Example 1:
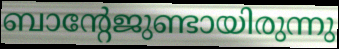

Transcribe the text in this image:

ബാന്റേജുണ്ടായിരുന്നു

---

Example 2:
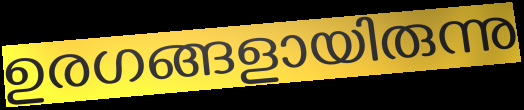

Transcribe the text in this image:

ഉരഗങ്ങളായിരുന്നു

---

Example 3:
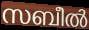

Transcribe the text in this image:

സബീൽ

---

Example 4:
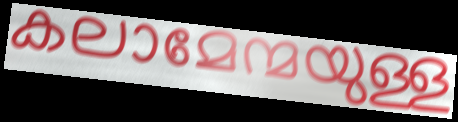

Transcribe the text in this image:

കലാമേന്മയുള്ള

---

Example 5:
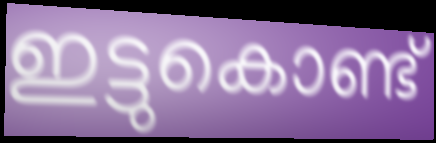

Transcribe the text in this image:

ഇട്ടുകൊണ്ട്